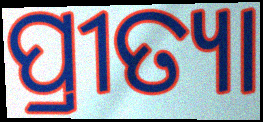
ପ୍ରୀତ୍ୟା